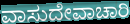
ವಾಸುದೇವಾಚಾರಿ